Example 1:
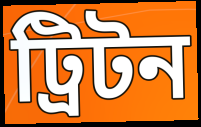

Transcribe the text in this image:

ট্রিটন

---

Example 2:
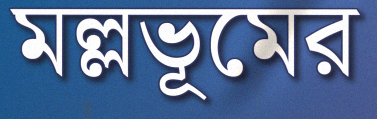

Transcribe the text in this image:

মল্লভূমের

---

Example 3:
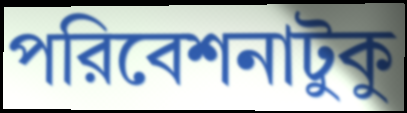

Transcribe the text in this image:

পরিবেশনাটুকু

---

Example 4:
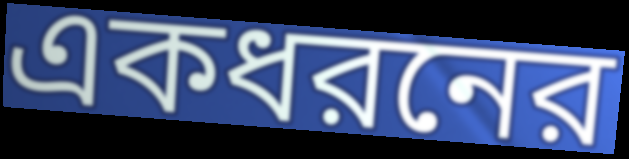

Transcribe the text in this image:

একধরনের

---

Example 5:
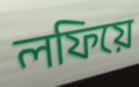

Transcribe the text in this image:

লফিয়ে